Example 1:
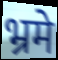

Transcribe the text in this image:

भ्रमे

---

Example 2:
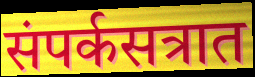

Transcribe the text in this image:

संपर्कसत्रात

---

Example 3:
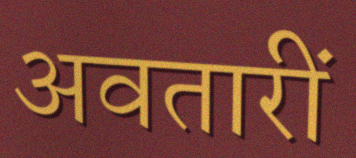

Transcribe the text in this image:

अवतारीं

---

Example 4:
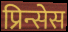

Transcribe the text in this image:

प्रिन्सेस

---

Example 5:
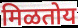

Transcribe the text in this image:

मिळतोय